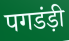
पगडंड़ी